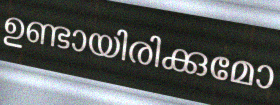
ഉണ്ടായിരിക്കുമോ